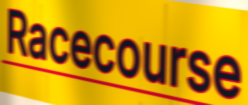
Racecourse